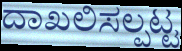
ದಾಖಲಿಸಲ್ಪಟ್ಟ